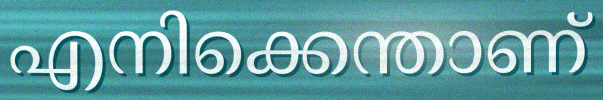
എനിക്കെന്താണ്